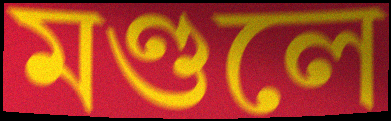
মণ্ডলে